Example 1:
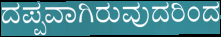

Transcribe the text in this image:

ದಪ್ಪವಾಗಿರುವುದರಿಂದ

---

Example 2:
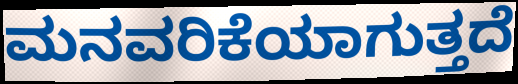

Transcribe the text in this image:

ಮನವರಿಕೆಯಾಗುತ್ತದೆ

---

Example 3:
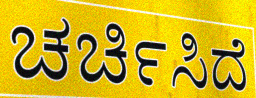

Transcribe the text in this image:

ಚರ್ಚಿಸಿದೆ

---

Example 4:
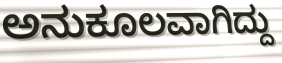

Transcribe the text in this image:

ಅನುಕೂಲವಾಗಿದ್ದು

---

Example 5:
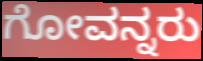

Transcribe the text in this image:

ಗೋವನ್ನರು